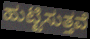
ಹುಟ್ಟಿಸುತ್ತವೆ